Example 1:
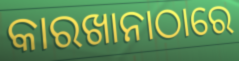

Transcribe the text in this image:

କାରଖାନାଠାରେ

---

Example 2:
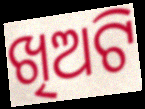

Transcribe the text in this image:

ଖିଅଟି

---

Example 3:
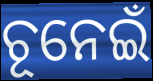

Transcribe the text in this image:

ଚୂନେଇଁ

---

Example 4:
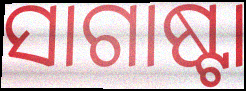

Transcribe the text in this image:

ସାଗାଷ୍ଟା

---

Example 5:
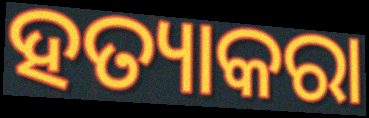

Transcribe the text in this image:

ହତ୍ୟାକରା